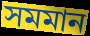
সমমান